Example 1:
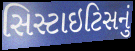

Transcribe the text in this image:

સિસ્ટાઇટિસનું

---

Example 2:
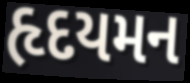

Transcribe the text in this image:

હૃદયમન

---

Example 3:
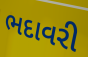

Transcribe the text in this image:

ભદાવરી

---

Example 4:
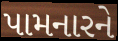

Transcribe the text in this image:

પામનારને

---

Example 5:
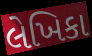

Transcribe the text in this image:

લેખિકા